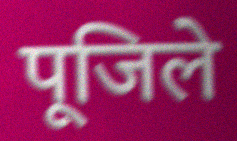
पूजिले